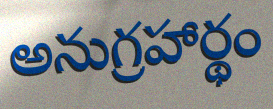
అనుగ్రహార్థం